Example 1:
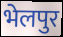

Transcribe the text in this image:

भेलपुर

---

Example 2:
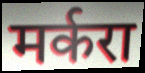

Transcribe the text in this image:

मर्करा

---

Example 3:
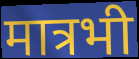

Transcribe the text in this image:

मात्रभी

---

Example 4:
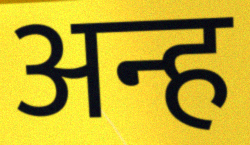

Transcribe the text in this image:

अन्ह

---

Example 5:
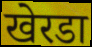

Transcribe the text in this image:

खेरडा